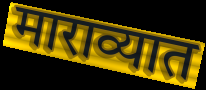
माराव्यात